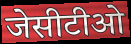
जेसीटीओ